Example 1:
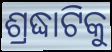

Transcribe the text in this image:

ଶ୍ରଦ୍ଧାଟିକୁ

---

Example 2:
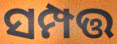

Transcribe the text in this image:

ସମ୍ପତ୍ତ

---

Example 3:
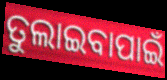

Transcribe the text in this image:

ତୁଲାଇବାପାଇଁ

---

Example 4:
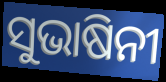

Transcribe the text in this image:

ସୁଭାଷିନୀ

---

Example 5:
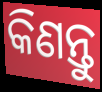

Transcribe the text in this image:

କିଣନ୍ତୁ